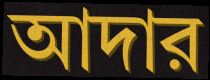
আদার